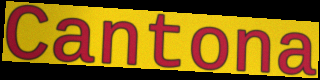
Cantona